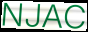
NJAC